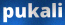
pukali